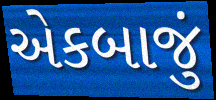
એકબાજું